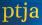
ptja